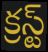
క్రస్ట్